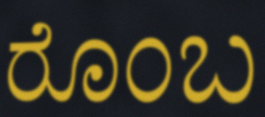
ರೊಂಬ